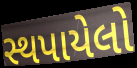
સ્થપાયેલો